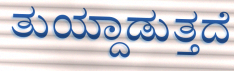
ತುಯ್ದಾಡುತ್ತದೆ